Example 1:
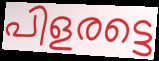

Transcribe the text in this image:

പിളരട്ടെ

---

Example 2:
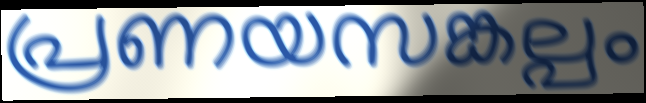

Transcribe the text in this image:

പ്രണയസങ്കല്പം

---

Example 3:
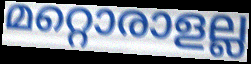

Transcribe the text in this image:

മറ്റൊരാളല്ല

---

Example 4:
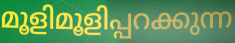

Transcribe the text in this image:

മൂളിമൂളിപ്പറക്കുന്ന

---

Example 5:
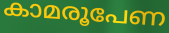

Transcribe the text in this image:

കാമരൂപേണ